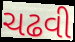
ચઢવી